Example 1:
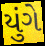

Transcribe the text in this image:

યુંગે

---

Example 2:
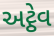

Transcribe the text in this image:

અટ્ઠેવ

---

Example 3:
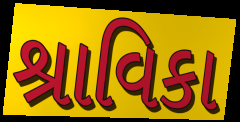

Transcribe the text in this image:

શ્રાવિકા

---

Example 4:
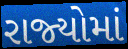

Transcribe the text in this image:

રાજ્‍યોમાં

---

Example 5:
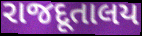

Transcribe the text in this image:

રાજદૂતાલય